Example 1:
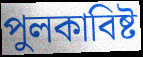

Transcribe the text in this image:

পুলকাবিষ্ট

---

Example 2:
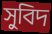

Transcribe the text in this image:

সুবিদ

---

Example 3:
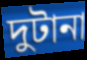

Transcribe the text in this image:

দুটানা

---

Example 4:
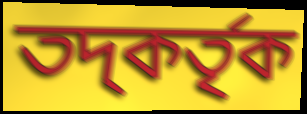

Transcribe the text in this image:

তদ্‌কর্তৃক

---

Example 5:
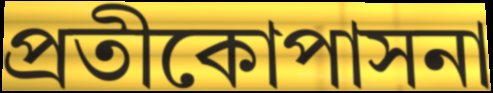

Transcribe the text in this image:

প্রতীকোপাসনা